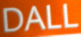
DALL